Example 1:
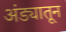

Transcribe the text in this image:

अंड्यातून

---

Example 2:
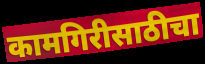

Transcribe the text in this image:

कामगिरीसाठीचा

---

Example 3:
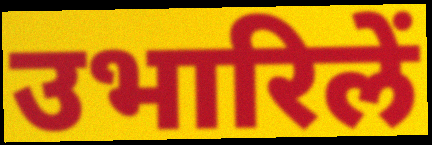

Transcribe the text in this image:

उभारिलें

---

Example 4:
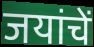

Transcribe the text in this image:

जयांचें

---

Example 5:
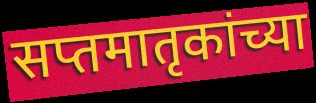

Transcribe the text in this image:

सप्तमातृकांच्या